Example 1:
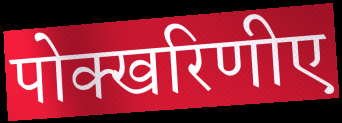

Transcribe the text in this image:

पोक्खरिणीए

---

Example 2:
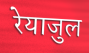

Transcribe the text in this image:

रेयाजुल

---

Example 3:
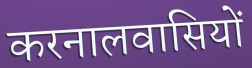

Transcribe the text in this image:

करनालवासियों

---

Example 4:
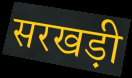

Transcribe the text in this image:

सरखड़ी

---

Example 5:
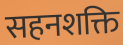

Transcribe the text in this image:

सहनशक्ति